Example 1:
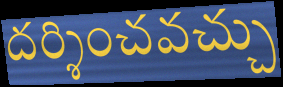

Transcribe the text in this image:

దర్శించవచ్చు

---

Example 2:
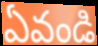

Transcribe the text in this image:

ఏవండి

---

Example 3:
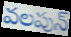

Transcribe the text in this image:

వలపున్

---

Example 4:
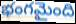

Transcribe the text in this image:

భంగమైంది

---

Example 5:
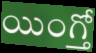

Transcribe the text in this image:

యింగ్తో